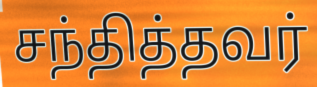
சந்தித்தவர்